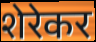
शेरेकर